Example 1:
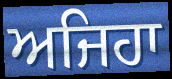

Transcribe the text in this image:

ਅਜਿਹਾ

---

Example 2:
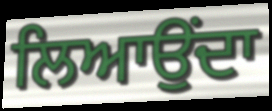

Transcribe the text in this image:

ਲਿਆਉਂਦਾ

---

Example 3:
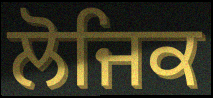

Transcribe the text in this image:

ਲੋਜਿਕ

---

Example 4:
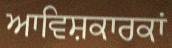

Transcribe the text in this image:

ਆਵਿਸ਼ਕਾਰਕਾਂ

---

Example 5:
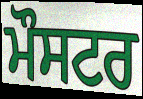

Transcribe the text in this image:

ਮੌਸਟਰ